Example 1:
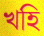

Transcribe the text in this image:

খহি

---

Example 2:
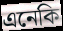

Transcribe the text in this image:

এনেকি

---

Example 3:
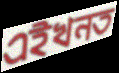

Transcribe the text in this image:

এইখনত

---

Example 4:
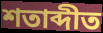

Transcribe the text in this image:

শতাব্দীত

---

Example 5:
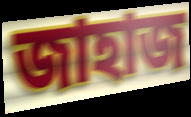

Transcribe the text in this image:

জাহাজ